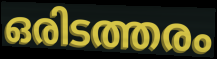
ഒരിടത്തരം